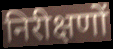
निरीक्षणों